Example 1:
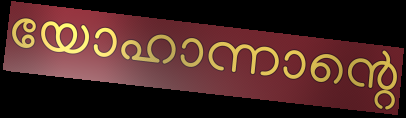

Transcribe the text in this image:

യോഹാന്നാന്റെ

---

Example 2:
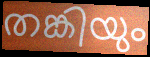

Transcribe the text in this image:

തങ്കിയും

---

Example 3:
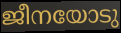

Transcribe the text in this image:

ജീനയോടു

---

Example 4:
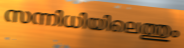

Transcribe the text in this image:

സന്നിധിയിലെത്തും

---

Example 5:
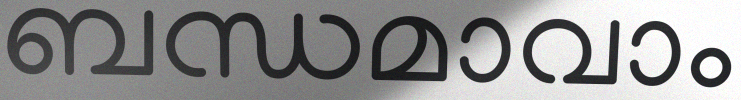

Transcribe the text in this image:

ബന്ധമാവാം